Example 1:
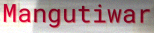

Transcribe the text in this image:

Mangutiwar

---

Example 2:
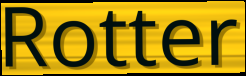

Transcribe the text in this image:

Rotter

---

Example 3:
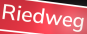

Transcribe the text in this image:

Riedweg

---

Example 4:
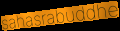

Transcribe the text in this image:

sahasrabuddhe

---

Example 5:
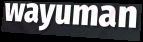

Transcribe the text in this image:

wayuman